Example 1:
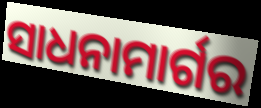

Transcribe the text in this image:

ସାଧନାମାର୍ଗର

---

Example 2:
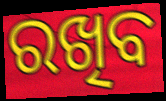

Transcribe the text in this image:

ରଖିବ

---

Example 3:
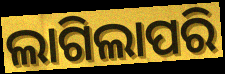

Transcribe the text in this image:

ଲାଗିଲାପରି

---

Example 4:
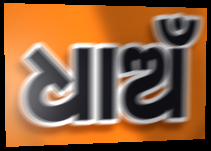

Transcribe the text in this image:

ଧାଅଁ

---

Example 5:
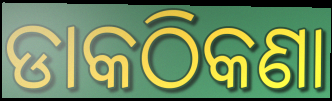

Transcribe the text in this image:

ଡାକଠିକଣା